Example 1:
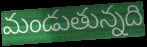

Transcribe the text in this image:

మండుతున్నది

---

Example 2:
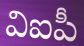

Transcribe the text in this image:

విఐపీ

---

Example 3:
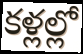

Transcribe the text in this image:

కళ్లల్లో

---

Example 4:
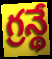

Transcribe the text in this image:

గ్రన్థే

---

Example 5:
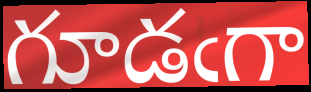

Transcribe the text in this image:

గూడఁగా